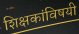
शिक्षकांविषयी